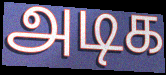
அடிக